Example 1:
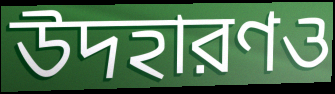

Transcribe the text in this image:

উদহারণও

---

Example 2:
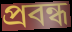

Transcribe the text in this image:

প্রবন্ধ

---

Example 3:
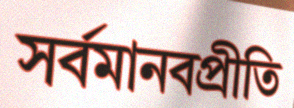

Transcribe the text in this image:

সর্বমানবপ্রীতি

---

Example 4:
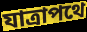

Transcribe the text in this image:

যাত্রাপথে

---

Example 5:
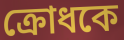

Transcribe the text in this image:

ক্রোধকে